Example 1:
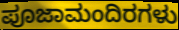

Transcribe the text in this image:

ಪೂಜಾಮಂದಿರಗಳು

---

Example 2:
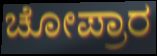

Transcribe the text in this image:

ಚೋಪ್ರಾರ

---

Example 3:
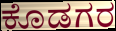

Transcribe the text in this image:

ಕೊಡಗರ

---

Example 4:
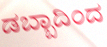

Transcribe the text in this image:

ಡಬ್ಬಾದಿಂದ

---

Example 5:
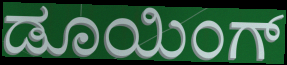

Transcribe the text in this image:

ಡೂಯಿಂಗ್